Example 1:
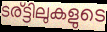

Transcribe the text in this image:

ടര്ട്ടിലുകളുടെ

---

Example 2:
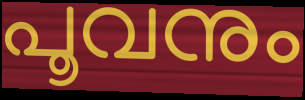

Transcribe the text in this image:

പൂവനും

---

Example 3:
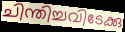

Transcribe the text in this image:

ചിന്തിച്ചവിടേക്കു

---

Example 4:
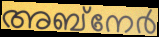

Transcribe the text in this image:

അബ്നേർ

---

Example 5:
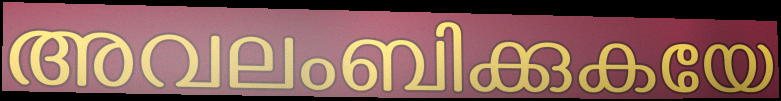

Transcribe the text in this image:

അവലംബിക്കുകയേ